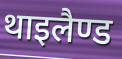
थाइलैण्ड